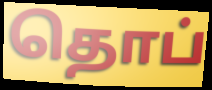
தொப்